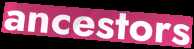
ancestors